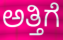
ಅತ್ತಿಗೆ